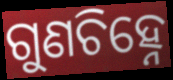
ଗୁଣଚିହ୍ନେ